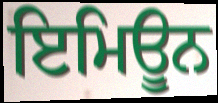
ਇਮਿਊਨ